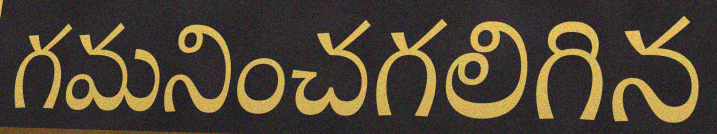
గమనించగలిగిన